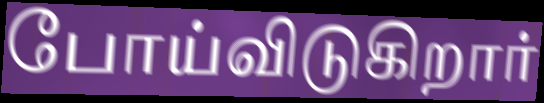
போய்விடுகிறார்